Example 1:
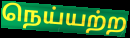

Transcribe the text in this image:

நெய்யற்ற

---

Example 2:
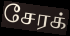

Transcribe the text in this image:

சேரக்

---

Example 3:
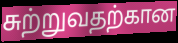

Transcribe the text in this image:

சுற்றுவதற்கான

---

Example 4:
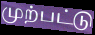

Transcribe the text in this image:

முற்பட்டு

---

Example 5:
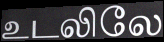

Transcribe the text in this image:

உடலிலே